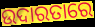
ଉଦାରତାରେ